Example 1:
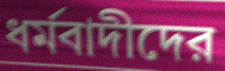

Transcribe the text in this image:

ধর্মবাদীদের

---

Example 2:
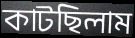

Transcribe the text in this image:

কাটছিলাম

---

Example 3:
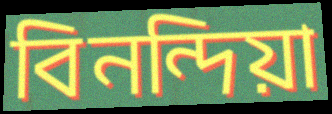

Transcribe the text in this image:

বিনন্দিয়া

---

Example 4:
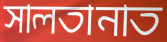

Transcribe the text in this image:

সালতানাত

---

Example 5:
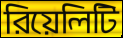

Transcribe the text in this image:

রিয়েলিটি